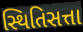
સ્થિતિસત્તા